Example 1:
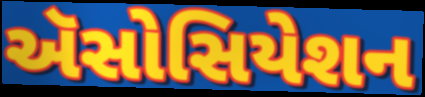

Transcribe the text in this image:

ઍસોસિયેશન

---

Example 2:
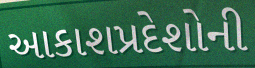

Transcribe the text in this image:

આકાશપ્રદેશોની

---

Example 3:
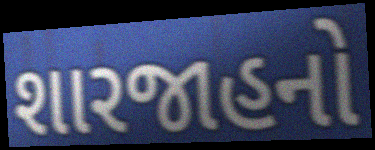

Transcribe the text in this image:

શારજાહનો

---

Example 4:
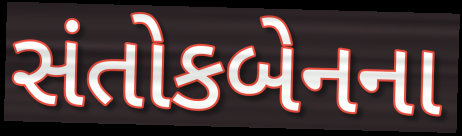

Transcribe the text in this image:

સંતોકબેનના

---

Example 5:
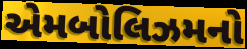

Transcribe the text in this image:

એમબોલિઝમનો